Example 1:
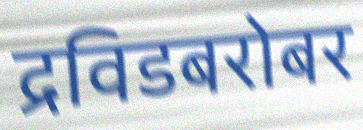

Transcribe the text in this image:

द्रविडबरोबर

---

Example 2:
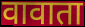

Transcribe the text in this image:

वावाता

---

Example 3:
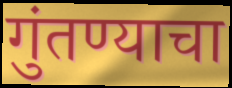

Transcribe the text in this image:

गुंतण्याचा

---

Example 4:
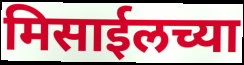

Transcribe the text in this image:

मिसाईलच्या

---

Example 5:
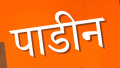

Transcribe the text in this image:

पाडीन